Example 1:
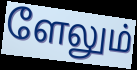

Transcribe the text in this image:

ளேலும்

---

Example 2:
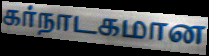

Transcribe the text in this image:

கர்நாடகமான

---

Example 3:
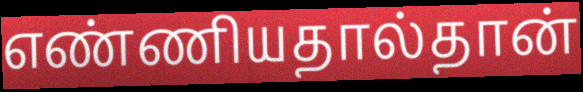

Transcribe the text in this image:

எண்ணியதால்தான்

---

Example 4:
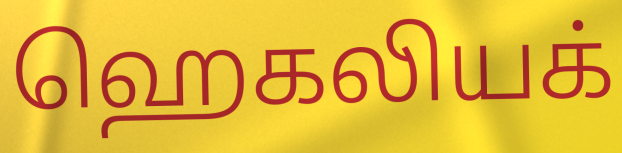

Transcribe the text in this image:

ஹெகலியக்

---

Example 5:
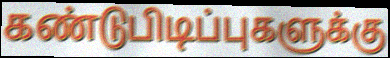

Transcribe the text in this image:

கண்டுபிடிப்புகளுக்கு